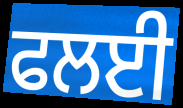
ਫਲਈ